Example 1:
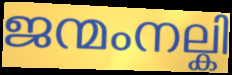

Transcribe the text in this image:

ജന്മംനല്കി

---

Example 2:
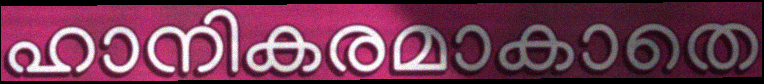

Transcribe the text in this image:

ഹാനികരമാകാതെ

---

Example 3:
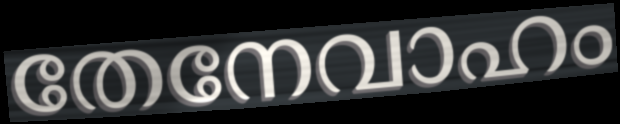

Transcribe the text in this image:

തേനേവാഹം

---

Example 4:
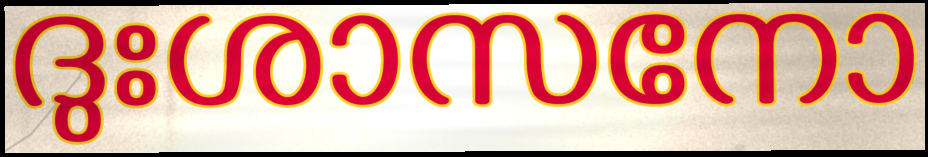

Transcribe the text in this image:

ദുഃശാസനോ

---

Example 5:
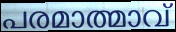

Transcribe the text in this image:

പരമാത്മാവ്